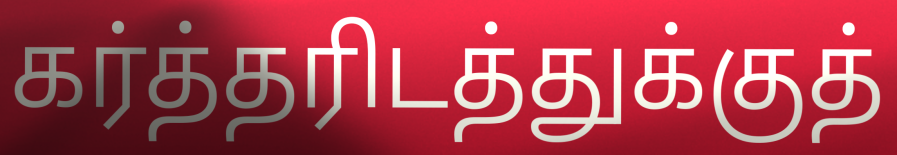
கர்த்தரிடத்துக்குத்